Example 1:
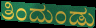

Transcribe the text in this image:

ತಿಂದುಂಡು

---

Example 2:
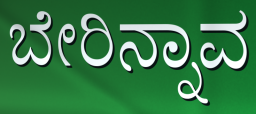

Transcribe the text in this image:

ಬೇರಿನ್ನಾವ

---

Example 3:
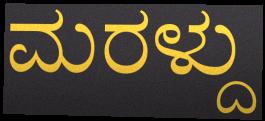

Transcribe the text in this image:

ಮರಳ್ದು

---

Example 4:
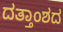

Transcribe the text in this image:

ದತ್ತಾಂಶದ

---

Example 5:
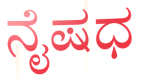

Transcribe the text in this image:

ನೈಷಧ